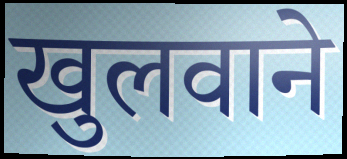
खुलवाने